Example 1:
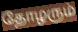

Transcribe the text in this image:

தோழரும்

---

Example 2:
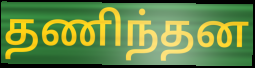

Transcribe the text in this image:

தணிந்தன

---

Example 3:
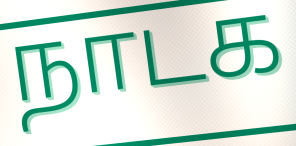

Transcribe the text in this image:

நாடக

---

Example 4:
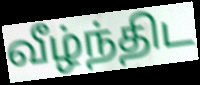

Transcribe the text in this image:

வீழ்ந்திட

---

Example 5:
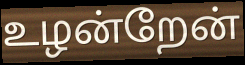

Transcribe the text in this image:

உழன்றேன்